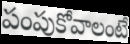
పంపుకోవాలంటే